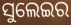
ସୁଲେଇର